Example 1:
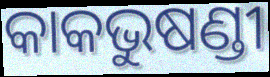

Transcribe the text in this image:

କାକଭୁଷଣ୍ଡୀ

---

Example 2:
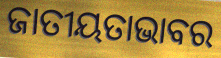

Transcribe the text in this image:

ଜାତୀୟତାଭାବର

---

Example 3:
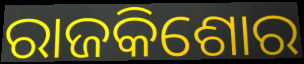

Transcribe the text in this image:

ରାଜକିଶୋର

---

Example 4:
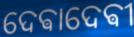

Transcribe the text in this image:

ଦେଵାଦେଵୀ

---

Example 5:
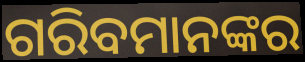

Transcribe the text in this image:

ଗରିବମାନଙ୍କର